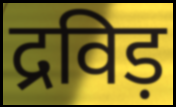
द्रविड़